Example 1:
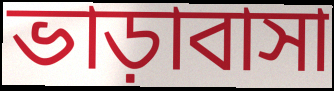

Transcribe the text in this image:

ভাড়াবাসা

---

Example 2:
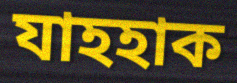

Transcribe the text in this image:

যাহহাক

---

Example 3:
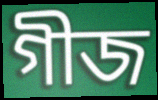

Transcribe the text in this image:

গীজ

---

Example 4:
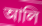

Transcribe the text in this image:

আলি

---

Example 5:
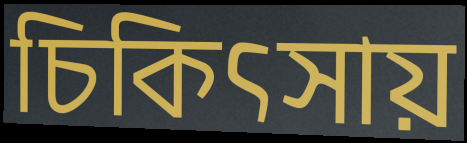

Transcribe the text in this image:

চিকিৎসায়